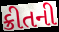
ક્રીતની